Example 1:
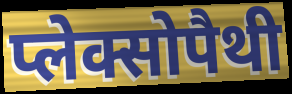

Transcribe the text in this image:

प्लेक्सोपैथी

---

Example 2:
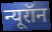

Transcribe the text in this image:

न्यूरॉन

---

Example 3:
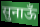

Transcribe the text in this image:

सुनाऊँ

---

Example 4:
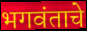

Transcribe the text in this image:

भगवंताचे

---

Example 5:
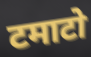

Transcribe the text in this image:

टमाटो